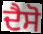
ਦੈਸੋ